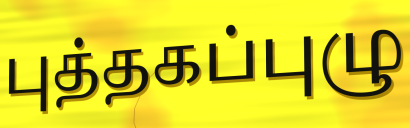
புத்தகப்புழு